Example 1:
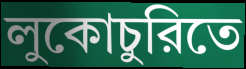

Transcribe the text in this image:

লুকোচুরিতে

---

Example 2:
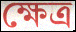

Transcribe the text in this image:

ক্ষেত্র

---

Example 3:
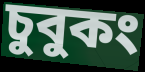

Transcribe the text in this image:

চুবুকং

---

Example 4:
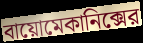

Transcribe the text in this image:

বায়োমেকানিক্সের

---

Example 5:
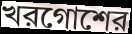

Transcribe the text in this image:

খরগোশের